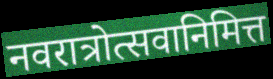
नवरात्रोत्सवानिमित्त